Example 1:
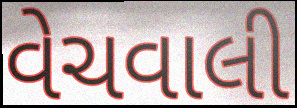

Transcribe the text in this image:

વેચવાલી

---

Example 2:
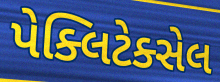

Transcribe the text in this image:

પેક્લિટેક્સેલ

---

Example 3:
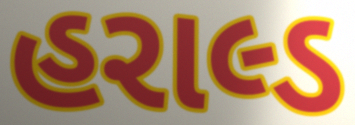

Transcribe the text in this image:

હરાલ્ડ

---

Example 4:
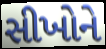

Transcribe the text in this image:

સીખોને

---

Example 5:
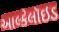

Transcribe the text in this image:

આલ્કેલૉઇડ